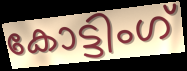
കോട്ടിംഗ്